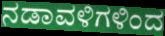
ನಡಾವಳಿಗಳಿಂದ